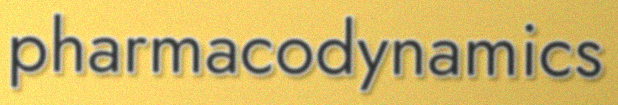
pharmacodynamics